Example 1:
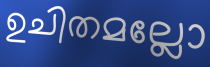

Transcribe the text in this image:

ഉചിതമല്ലോ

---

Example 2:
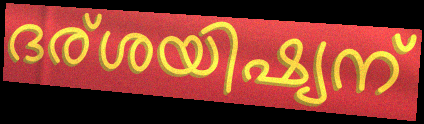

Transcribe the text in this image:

ദര്ശയിഷ്യന്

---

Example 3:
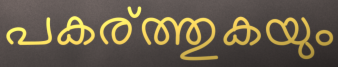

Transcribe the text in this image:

പകര്ത്തുകയും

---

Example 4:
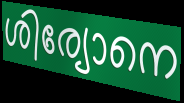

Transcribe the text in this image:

ശിര്യോനെ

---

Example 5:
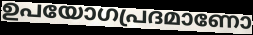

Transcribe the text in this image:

ഉപയോഗപ്രദമാണോ